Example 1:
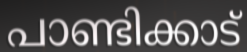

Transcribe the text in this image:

പാണ്ടിക്കാട്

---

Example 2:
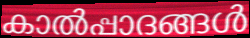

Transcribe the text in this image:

കാൽപ്പാദങ്ങൾ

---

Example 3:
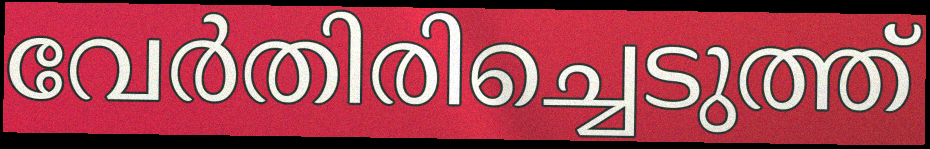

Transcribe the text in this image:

വേർതിരിച്ചെടുത്ത്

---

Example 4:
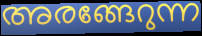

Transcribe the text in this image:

അരങ്ങേറുന്ന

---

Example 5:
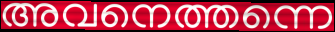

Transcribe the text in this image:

അവനെത്തന്നെ